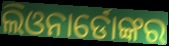
ଲିଓନାର୍ଡୋଙ୍କର